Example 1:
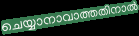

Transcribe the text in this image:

ചെയ്യാനാവാത്തതിനാൽ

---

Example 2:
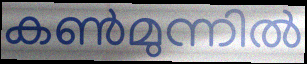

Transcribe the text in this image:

കൺമുന്നിൽ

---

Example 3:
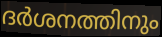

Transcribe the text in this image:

ദർശനത്തിനും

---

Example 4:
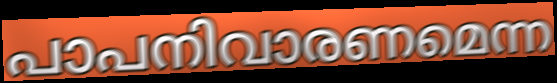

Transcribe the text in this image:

പാപനിവാരണമെന്ന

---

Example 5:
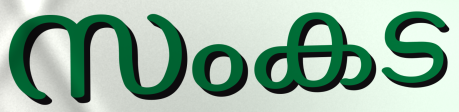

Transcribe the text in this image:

സംകട